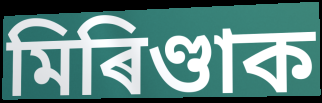
মিৰিণ্ডাক